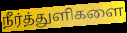
நீர்த்துளிகளை